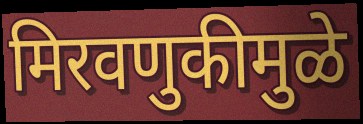
मिरवणुकीमुळे